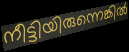
നീട്ടിയിരുന്നെങ്കിൽ